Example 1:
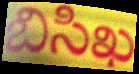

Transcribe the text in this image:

బిసిఖ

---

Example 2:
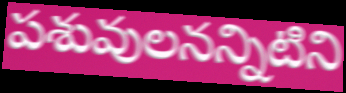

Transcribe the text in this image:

పశువులనన్నిటిని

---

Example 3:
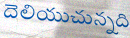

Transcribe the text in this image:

దెలియుచున్నది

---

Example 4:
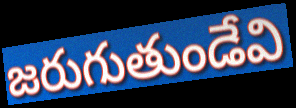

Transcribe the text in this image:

జరుగుతుండేవి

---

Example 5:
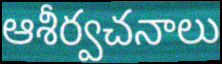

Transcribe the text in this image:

ఆశీర్వచనాలు